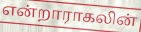
என்றாராகலின்